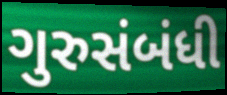
ગુરુસંબંધી